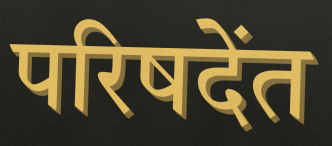
परिषदेंत